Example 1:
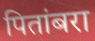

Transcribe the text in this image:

पितांबरा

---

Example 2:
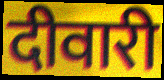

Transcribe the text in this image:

दीवारी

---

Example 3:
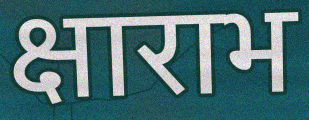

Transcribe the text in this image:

क्षाराभ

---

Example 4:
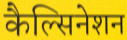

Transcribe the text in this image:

कैल्सिनेशन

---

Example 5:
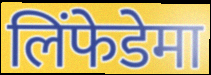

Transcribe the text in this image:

लिंफेडेमा